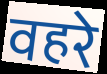
वहरे